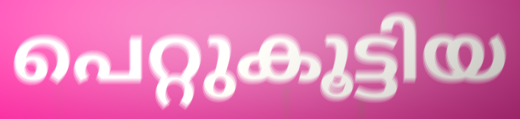
പെറ്റുകൂട്ടിയ